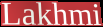
Lakhmi